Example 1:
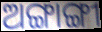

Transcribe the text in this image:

ଅଙ୍ଗାଙ୍ଗୀ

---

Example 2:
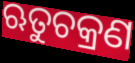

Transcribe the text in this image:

ଋତୁଚକ୍ରଣ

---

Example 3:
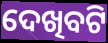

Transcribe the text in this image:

ଦେଖିବଟି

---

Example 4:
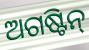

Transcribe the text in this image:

ଅଗଷ୍ଟିନ୍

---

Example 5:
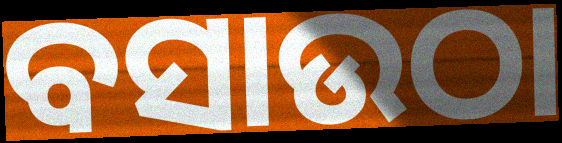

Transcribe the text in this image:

ବସାଉଠା